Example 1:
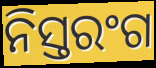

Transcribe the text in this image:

ନିସ୍ତରଂଗ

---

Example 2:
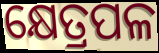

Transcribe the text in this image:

କ୍ଷେତ୍ରପଳ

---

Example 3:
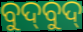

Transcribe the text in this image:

ବୁଦ୍‍ବୁଦ୍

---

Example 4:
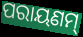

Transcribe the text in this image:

ପରାୟଣମ୍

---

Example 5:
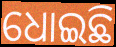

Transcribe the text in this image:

ଧୋଇଛି